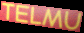
TELMU